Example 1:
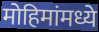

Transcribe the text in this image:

मोहिमांमध्ये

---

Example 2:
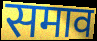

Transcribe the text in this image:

समाव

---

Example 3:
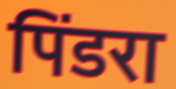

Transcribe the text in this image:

पिंडरा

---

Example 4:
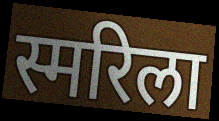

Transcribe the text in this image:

स्मरिला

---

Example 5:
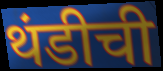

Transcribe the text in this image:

थंडीची